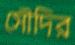
সৌদির